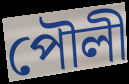
পৌলী